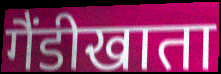
गैंडीखाता